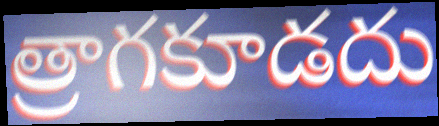
త్రాగకూడదు